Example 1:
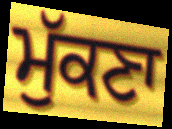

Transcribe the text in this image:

ਮੁੱਕਣਾ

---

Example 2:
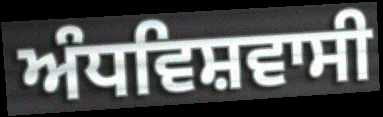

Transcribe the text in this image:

ਅੰਧਵਿਸ਼ਵਾਸੀ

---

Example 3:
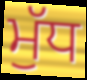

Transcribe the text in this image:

ਮੁੱਧ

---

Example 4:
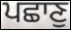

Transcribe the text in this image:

ਪਛਾਣੁ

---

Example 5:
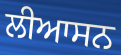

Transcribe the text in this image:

ਲੀਆਸਨ